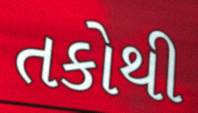
તકોથી